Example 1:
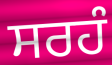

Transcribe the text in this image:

ਸਰਹੰ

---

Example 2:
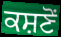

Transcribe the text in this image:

ਕਸ਼ਣੋਂ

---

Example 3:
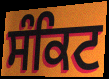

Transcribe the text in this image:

ਸੰਕਿਟ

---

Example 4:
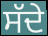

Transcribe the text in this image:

ਸੱਦੇ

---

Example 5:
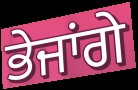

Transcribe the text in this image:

ਭੇਜਾਂਗੇ